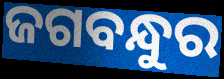
ଜଗବନ୍ଧୁର